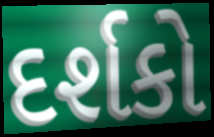
દર્શકો